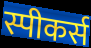
स्पीकर्स